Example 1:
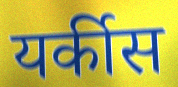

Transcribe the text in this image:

यर्कीस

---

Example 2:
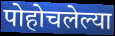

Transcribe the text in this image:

पोहोचलेल्या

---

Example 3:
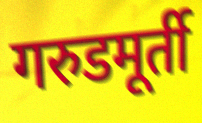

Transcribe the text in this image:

गरुडमूर्ती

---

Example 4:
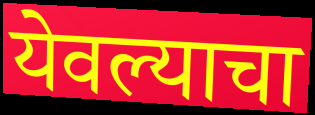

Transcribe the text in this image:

येवल्याचा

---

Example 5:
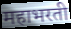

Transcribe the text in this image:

महाभरती